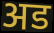
अड